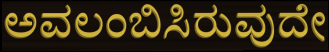
ಅವಲಂಬಿಸಿರುವುದೇ